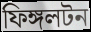
ফিঙ্গলটন